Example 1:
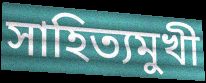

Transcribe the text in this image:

সাহিত্যমুখী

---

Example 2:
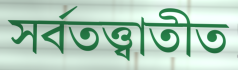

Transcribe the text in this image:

সর্বতত্ত্বাতীত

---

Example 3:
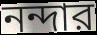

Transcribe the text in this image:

নন্দার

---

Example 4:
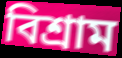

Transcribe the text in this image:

বিশ্রাম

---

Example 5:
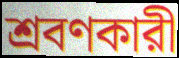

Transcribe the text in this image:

শ্রবণকারী